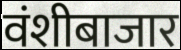
वंशीबाजार